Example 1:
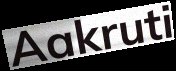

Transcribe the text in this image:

Aakruti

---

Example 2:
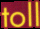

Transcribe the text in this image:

toll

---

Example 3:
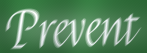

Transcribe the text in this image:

Prevent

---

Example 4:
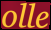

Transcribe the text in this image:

olle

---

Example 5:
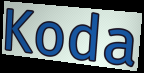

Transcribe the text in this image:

Koda